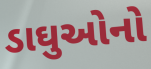
ડાઘુઓનો